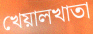
খেয়ালখাতা